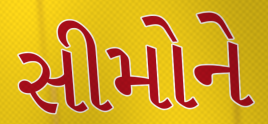
સીમોને